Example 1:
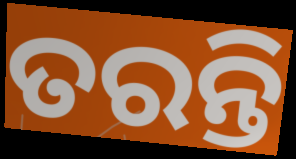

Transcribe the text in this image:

ତରନ୍ତି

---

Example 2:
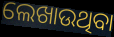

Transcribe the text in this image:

ଲେଖାଉଥିବା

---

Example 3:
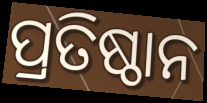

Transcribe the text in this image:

ପ୍ରତିଷ୍ଠାନ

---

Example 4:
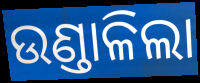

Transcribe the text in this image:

ଉଣ୍ଡାଳିଲା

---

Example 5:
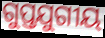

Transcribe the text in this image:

ଗୁପ୍ତଯୁଗୀୟ